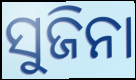
ସୁଜିନା